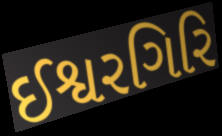
ઈશ્વરગિરિ